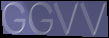
GGVV